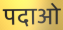
पदाओ